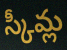
స్కీమ్ల